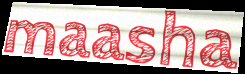
maasha